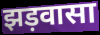
झड़वासा